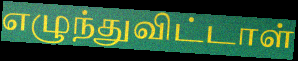
எழுந்துவிட்டாள்